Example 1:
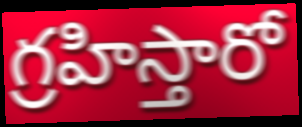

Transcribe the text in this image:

గ్రహిస్తారో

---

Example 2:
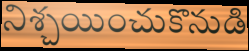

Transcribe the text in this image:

నిశ్చయించుకొనుడి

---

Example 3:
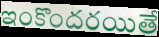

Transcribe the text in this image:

ఇంకొందరయితే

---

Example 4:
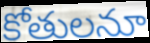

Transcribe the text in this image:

కోతులనూ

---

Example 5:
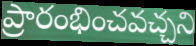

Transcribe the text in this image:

ప్రారంభించవచ్చని